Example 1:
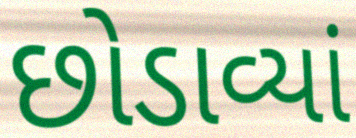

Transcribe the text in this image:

છોડાવ્યાં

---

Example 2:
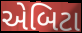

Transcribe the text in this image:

એબિટા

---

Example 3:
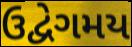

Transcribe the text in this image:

ઉદ્વેગમય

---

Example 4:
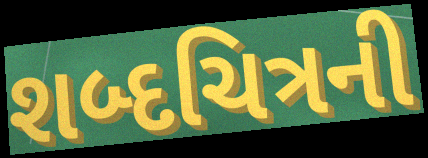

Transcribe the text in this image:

શબ્દચિત્રની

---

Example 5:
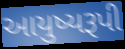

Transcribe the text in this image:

આયુષ્યરૂપી